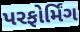
પરફોર્મિંગ